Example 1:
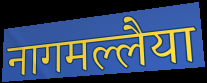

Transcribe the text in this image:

नागमल्लैया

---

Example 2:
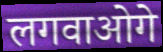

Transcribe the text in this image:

लगवाओगे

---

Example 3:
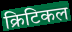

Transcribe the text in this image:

क्रिटिकल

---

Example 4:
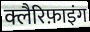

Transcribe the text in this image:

क्लैरिफ़ाइंग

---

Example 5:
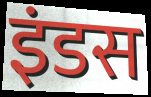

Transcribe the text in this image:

इंडस